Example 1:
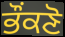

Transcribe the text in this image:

ਭੌਂਕਣੋ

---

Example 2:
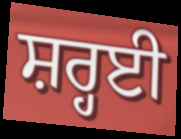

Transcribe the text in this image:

ਸ਼ਰ੍ਹਈ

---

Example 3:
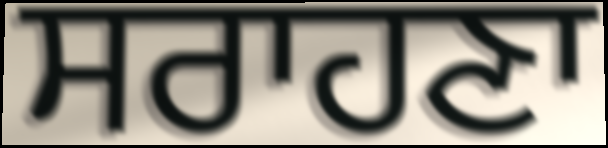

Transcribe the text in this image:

ਸਰਾਹਣਾ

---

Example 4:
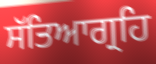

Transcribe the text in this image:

ਸੱਤਿਆਗ੍ਰਹਿ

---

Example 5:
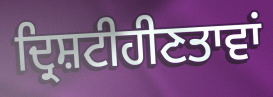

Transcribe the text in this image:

ਦ੍ਰਿਸ਼ਟੀਹੀਣਤਾਵਾਂ